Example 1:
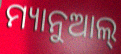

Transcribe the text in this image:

ମ୍ୟାନୁଆଲ୍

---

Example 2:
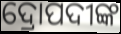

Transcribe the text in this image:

ଦ୍ରୋପଦୀଙ୍କ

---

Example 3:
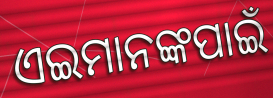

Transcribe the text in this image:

ଏଇମାନଙ୍କପାଇଁ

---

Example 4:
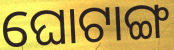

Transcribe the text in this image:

ଘୋଟାଙ୍ଗ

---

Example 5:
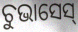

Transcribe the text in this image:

ଚୁଭାସେସ୍